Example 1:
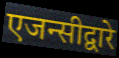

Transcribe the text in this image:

एजन्सीद्वारे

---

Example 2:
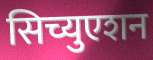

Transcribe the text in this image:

सिच्युएशन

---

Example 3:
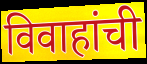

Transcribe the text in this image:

विवाहांची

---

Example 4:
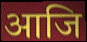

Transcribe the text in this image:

आजि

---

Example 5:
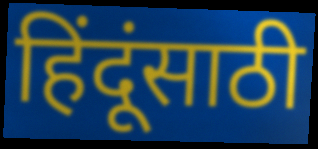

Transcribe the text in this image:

हिंदूंसाठी